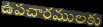
ఉపచారములకు